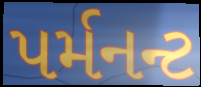
પર્મનન્ટ